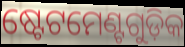
ଷ୍ଟେଟମେଣ୍ଟଗୁଡ଼ିକ